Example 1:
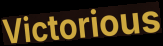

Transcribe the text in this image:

Victorious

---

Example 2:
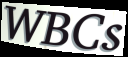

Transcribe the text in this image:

WBCs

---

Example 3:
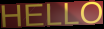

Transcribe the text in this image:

HELLO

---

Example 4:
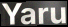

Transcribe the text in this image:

Yaru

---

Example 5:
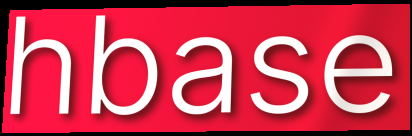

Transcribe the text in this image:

hbase